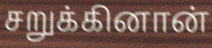
சறுக்கினான்